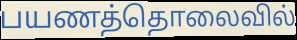
பயணத்தொலைவில்